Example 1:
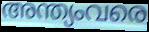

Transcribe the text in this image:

അന്ത്യംവരെ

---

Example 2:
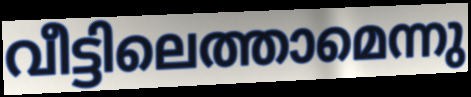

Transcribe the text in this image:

വീട്ടിലെത്താമെന്നു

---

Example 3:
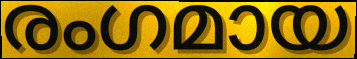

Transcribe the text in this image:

രംഗമായ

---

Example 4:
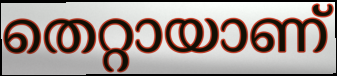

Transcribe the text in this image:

തെറ്റായാണ്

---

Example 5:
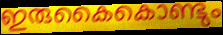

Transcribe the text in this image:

ഇരുകൈകൊണ്ടും